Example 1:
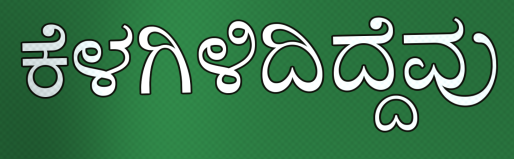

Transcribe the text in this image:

ಕೆಳಗಿಳಿದಿದ್ದೆವು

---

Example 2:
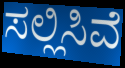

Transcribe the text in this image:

ಸಲ್ಲಿಸಿವೆ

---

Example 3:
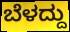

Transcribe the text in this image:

ಬೆಳದ್ದು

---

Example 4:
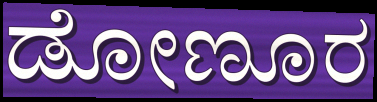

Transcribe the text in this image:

ಡೋಣೂರ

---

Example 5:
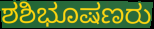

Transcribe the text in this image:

ಶಶಿಭೂಷಣರು